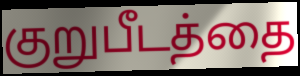
குறுபீடத்தை